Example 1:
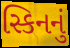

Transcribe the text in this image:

સ્કિનનું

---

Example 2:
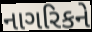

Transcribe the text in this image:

નાગરિકને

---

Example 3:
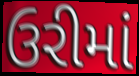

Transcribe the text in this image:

ઉરીમાં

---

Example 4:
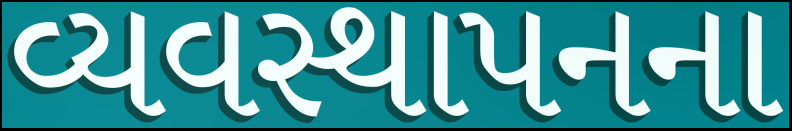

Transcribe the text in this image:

વ્યવસ્થાપનના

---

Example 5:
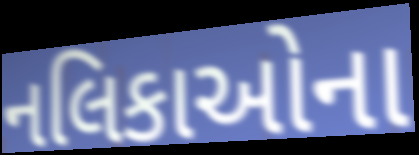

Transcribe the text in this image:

નલિકાઓના